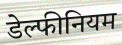
डेल्फीनियम